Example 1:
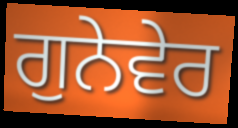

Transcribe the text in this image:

ਗੁਨੇਵੇਰ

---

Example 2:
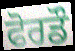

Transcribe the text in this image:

ਫੋਰਡੌ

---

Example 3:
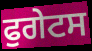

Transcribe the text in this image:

ਫੁਗੇਟਸ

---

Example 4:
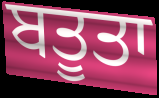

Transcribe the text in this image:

ਬਤੂਤਾ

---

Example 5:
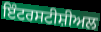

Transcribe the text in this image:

ਇੰਟਰਸਟੀਸ਼ੀਅਲ